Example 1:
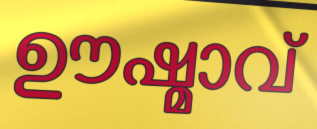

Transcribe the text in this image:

ഊഷ്മാവ്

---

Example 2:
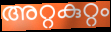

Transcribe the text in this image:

അറ്റകുറ്റം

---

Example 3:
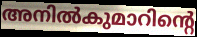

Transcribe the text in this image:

അനിൽകുമാറിന്റെ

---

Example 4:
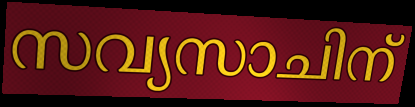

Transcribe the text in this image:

സവ്യസാചിന്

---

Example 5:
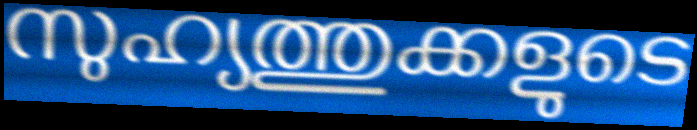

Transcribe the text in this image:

സുഹ്യത്തുക്കളുടെ